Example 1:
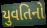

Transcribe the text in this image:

યુવતિનો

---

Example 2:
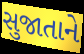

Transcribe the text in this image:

સુજાતાને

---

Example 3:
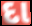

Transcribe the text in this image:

દા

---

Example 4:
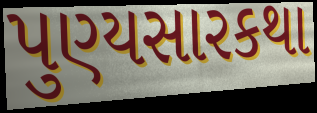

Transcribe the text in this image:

પુણ્યસારકથા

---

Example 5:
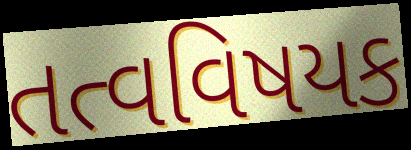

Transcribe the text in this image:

તત્વવિષયક